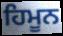
ਹਿਮੂਨ